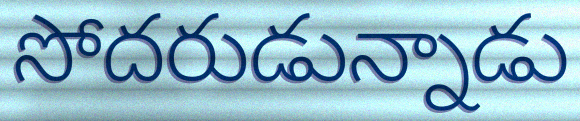
సోదరుడున్నాడు